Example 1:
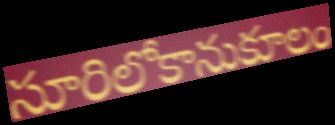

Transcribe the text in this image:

సూరిలోకానుకూలం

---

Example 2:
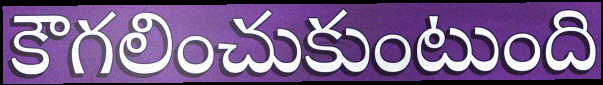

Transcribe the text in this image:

కౌగలించుకుంటుంది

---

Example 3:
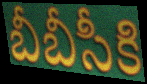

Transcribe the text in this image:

బీబీసీకి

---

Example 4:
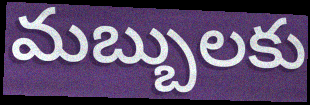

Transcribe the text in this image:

మబ్బులకు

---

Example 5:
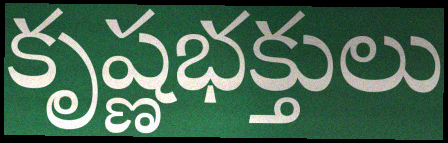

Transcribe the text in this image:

కృష్ణభక్తులు